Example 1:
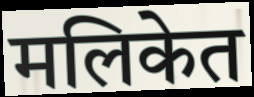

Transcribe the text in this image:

मलिकेत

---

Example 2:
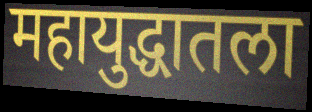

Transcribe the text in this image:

महायुद्धातला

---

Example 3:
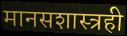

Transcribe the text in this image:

मानसशास्त्रही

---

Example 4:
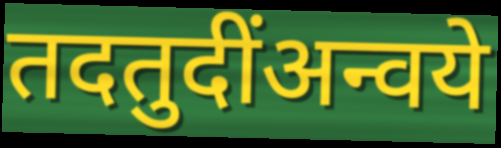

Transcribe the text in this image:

तदतुदींअन्वये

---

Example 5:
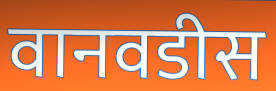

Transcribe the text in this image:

वानवडीस